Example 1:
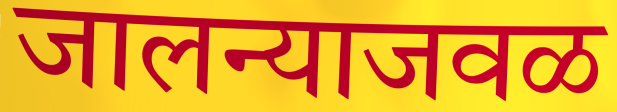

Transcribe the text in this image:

जालन्याजवळ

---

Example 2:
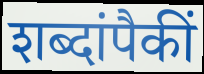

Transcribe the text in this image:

शब्दांपैकीं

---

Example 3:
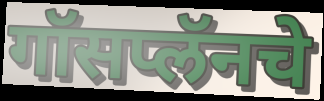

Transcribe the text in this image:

गॉसप्लॅनचे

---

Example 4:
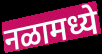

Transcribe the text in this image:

नळामध्ये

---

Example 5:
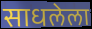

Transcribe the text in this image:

साधलेला